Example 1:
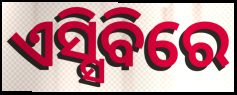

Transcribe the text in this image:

ଏସ୍ସିବିରେ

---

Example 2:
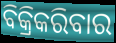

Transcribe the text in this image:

ବିକ୍ରିକରିବାର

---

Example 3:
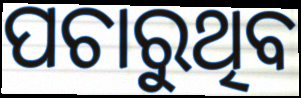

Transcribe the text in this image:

ପଚାରୁଥିବ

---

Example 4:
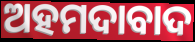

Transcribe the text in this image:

ଅହମଦାବାଦ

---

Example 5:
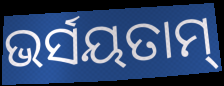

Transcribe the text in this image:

ଭର୍ସୟତାମ୍